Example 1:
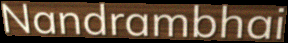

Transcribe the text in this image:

Nandrambhai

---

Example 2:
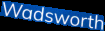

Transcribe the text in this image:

Wadsworth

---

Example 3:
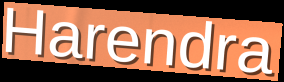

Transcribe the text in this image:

Harendra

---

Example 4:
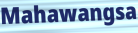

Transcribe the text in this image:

Mahawangsa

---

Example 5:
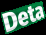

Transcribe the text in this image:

Deta